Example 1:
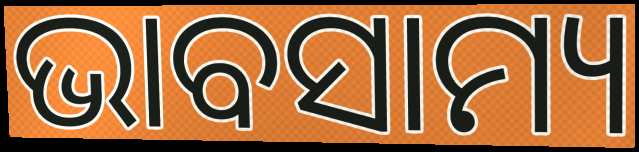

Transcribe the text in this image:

ଭାବସାମ୍ୟ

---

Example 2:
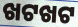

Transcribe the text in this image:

ଖଟଖଟ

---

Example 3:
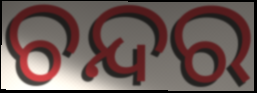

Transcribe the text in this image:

ଚନ୍ଦର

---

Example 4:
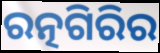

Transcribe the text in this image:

ରତ୍ନଗିରିର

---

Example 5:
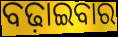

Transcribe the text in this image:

ବଢ଼ାଇବାର